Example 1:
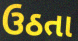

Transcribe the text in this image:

ઉઠતા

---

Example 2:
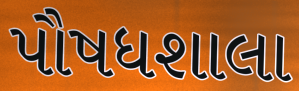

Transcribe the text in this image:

પૌષધશાલા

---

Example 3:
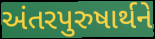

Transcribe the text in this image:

અંતરપુરુષાર્થને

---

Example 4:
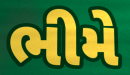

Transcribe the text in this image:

ભીમે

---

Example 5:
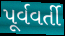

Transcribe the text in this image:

પૂર્વવર્તી